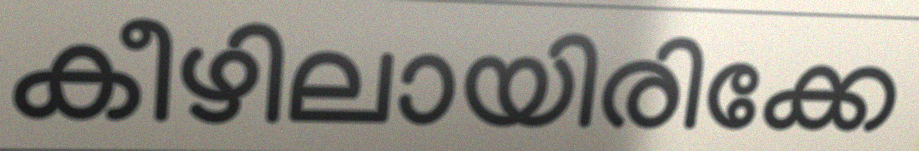
കീഴിലായിരിക്കേ